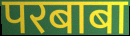
परबाबा